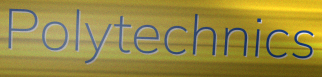
Polytechnics